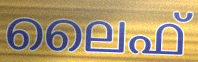
ലൈഫ്